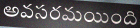
అవసరమయింది